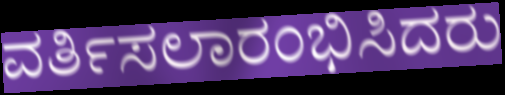
ವರ್ತಿಸಲಾರಂಭಿಸಿದರು